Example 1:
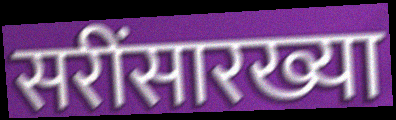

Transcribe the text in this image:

सरींसारख्या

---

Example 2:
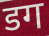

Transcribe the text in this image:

डग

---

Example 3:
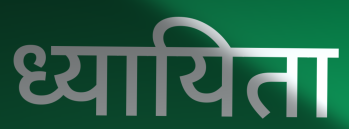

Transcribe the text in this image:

ध्यायिता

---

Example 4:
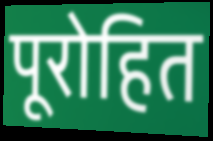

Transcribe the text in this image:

पूरोहित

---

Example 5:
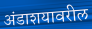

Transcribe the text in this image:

अंडाशयावरील